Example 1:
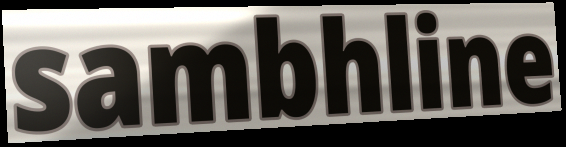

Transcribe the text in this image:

sambhline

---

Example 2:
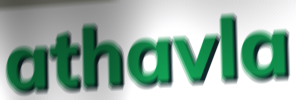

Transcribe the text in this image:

athavla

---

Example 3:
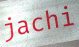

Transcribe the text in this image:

jachi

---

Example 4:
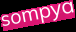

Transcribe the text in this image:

sompya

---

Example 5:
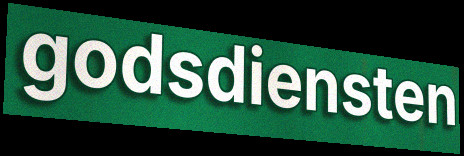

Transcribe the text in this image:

godsdiensten